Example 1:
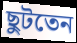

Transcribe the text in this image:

ছুটতেন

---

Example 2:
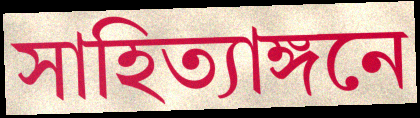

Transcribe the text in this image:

সাহিত্যাঙ্গনে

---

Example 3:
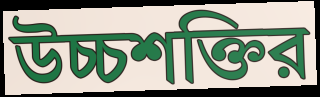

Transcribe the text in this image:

উচ্চশক্তির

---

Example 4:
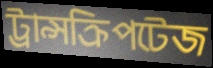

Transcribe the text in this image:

ট্রান্সক্রিপটেজ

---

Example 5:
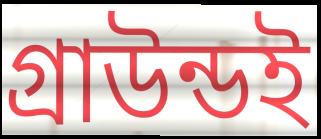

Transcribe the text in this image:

গ্রাউন্ডই